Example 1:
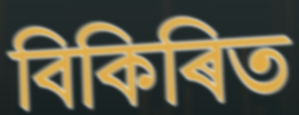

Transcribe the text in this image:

বিকিৰিত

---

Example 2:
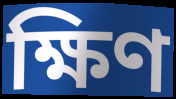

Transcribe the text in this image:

ক্ষিণ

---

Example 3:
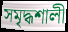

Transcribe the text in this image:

সমৃদ্ধশালী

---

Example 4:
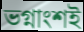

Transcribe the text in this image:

ভগ্নাংশই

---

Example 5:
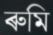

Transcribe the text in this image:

ৰুমি